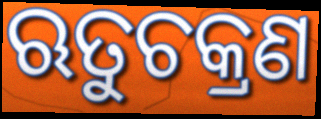
ଋତୁଚକ୍ରଣ